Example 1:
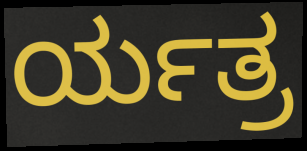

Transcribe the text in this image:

ರ್ಯತ್ರ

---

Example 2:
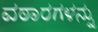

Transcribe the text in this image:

ವಠಾರಗಳನ್ನು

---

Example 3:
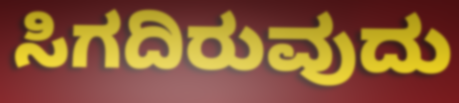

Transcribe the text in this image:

ಸಿಗದಿರುವುದು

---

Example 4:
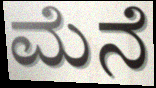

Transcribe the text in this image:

ಮೆನೆ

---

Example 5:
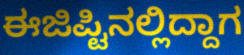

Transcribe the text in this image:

ಈಜಿಪ್ಟಿನಲ್ಲಿದ್ದಾಗ